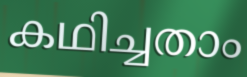
കഥിച്ചതാം